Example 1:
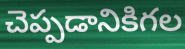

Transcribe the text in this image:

చెప్పడానికిగల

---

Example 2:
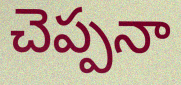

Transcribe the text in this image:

చెప్పనా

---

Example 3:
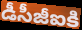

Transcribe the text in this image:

డీసీజీఐకి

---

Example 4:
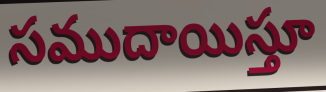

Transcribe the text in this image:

సముదాయిస్తూ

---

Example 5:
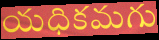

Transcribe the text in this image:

యధికమగు